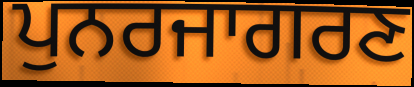
ਪੁਨਰਜਾਗਰਣ